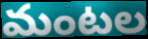
మంటల